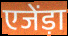
एजेंड़ा